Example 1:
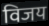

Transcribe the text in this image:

विजय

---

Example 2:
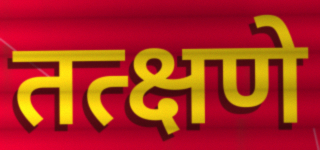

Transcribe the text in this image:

तत्क्षणे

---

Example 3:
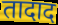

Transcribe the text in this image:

तादाद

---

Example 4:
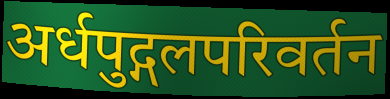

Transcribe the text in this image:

अर्धपुद्गलपरिवर्तन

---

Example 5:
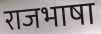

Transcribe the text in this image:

राजभाषा